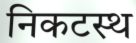
निकटस्‍थ